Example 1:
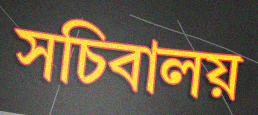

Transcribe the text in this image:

সচিবালয়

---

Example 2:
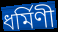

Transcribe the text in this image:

ধর্মিণী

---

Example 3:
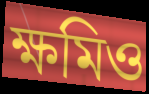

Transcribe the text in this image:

ক্ষমিও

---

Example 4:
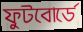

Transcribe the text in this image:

ফুটবোর্ডে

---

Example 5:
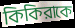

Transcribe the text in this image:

কিকিরাকে